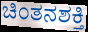
ಚಿಂತನಶಕ್ತಿ